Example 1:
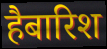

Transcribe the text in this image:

हैबारिश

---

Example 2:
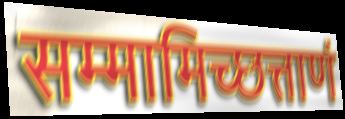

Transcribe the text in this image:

सम्मामिच्छत्ताणं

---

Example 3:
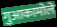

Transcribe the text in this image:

गुआकामोले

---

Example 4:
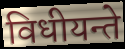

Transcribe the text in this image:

विधीयन्ते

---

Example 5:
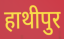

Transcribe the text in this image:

हाथीपुर